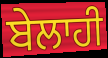
ਬੇਲਾਹੀ